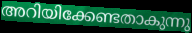
അറിയിക്കേണ്ടതാകുന്നു